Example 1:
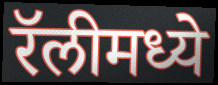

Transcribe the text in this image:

रॅलीमध्ये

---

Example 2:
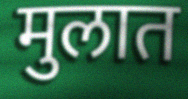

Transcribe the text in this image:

मुलात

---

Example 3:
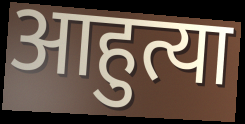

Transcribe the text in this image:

आहुत्या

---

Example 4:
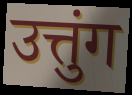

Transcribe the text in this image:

उत्तुंग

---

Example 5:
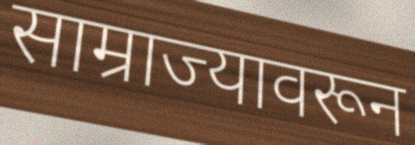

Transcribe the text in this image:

साम्राज्यावरून